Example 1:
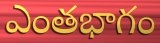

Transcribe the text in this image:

ఎంతభాగం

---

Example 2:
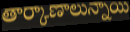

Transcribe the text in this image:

తార్కాణాలున్నాయి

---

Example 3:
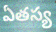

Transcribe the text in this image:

ఏతస్య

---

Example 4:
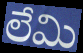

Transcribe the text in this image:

లేమి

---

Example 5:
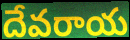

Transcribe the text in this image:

దేవరాయ